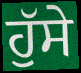
ਹੁੱਸੇ